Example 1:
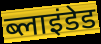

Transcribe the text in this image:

ब्लाइंडेड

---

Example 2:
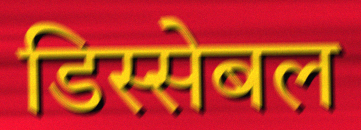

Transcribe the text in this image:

डिस्सेबल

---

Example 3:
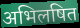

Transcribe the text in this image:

अभिलषित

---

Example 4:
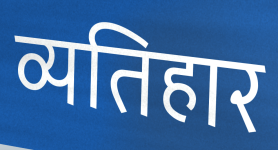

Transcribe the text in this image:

व्यतिहार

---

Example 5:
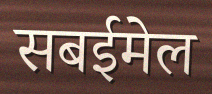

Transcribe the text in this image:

सबईमेल